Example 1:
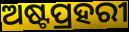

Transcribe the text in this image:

ଅଷ୍ଟପ୍ରହରୀ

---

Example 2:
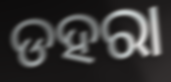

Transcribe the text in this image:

ଡହରା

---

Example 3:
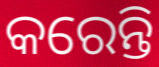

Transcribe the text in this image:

କରେନ୍ତି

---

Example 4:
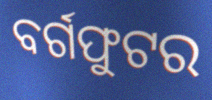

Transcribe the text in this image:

ବର୍ଗଫୁଟର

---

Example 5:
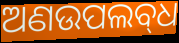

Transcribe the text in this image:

ଅଣଉପଲବ୍‌ଧ